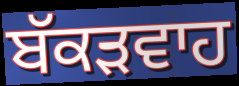
ਬੱਕੜਵਾਹ